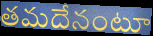
తమదేనంటూ